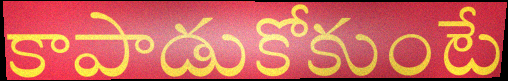
కాపాడుకోకుంటే